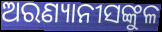
ଅରଣ୍ୟାନୀସଙ୍କୁଳ